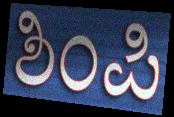
ಶಿಂಪಿ